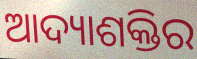
ଆଦ୍ୟାଶକ୍ତିର